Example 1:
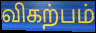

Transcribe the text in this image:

விகற்பம்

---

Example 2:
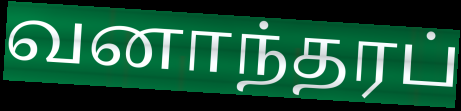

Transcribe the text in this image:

வனாந்தரப்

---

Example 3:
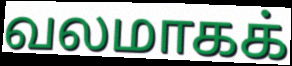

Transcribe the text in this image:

வலமாகக்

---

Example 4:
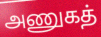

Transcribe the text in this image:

அணுகத்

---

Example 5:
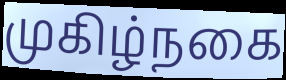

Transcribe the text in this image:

முகிழ்நகை